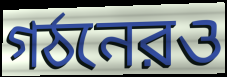
গঠনেরও